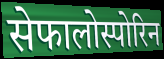
सेफालोस्पोरिन